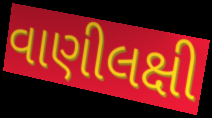
વાણીલક્ષી